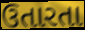
ઉતારતા